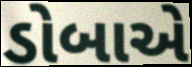
ડોબાએ